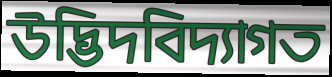
উদ্ভিদবিদ্যাগত